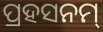
ପ୍ରହସନମ୍